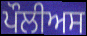
ਪੌਲੀਅਸ